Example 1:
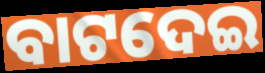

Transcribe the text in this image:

ବାଟଦେଇ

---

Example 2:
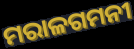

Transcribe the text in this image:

ମରାଳଗମନୀ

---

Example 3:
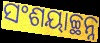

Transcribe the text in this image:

ସଂଶୟାଚ୍ଛନ୍ନ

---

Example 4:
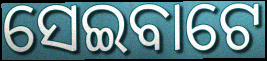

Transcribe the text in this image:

ସେଇବାଟେ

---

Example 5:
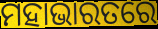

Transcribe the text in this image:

ମହାଭାରତରେ